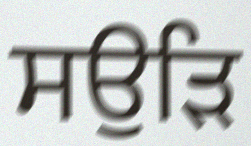
ਸਉੜਿ